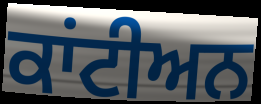
ਕਾਂਟੀਅਨ